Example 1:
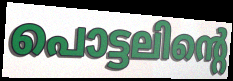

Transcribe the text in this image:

പൊട്ടലിന്റെ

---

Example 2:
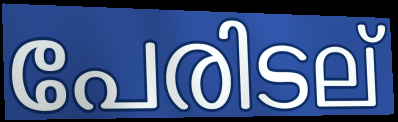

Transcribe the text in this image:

പേരിടല്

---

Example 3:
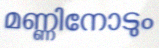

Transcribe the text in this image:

മണ്ണിനോടും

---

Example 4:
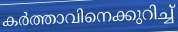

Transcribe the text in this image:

കർത്താവിനെക്കുറിച്ച്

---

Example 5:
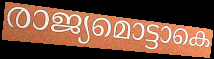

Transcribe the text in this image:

രാജ്യമൊട്ടാകെ